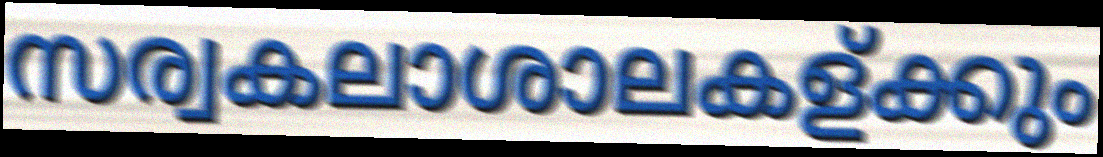
സര്വകലാശാലകള്ക്കും